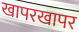
खापरखापर